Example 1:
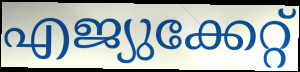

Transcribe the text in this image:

എജ്യുക്കേറ്റ്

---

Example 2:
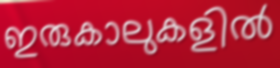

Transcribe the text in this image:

ഇരുകാലുകളിൽ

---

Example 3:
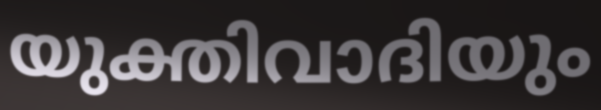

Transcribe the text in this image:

യുക്തിവാദിയും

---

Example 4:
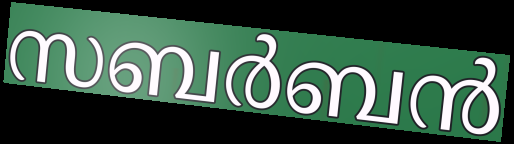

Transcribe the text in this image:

സബർബൻ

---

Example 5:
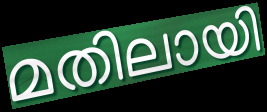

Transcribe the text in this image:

മതിലായി